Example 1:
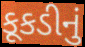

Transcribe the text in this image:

કૂકડીનું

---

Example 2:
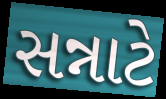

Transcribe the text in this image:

સન્નાટે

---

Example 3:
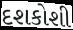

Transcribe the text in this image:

દશકોશી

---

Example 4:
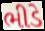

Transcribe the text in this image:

ભીડે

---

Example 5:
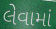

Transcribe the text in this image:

લેવામાં